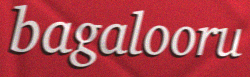
bagalooru